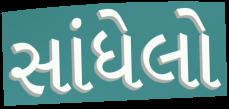
સાંધેલો